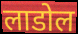
लाडोल